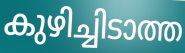
കുഴിച്ചിടാത്ത